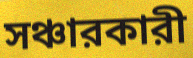
সঞ্চারকারী